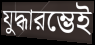
যুদ্ধারম্ভেই